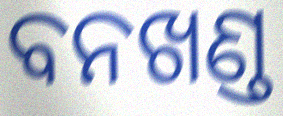
ବନଖଣ୍ଡ